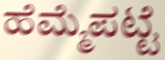
ಹೆಮ್ಮೆಪಟ್ಟೆ